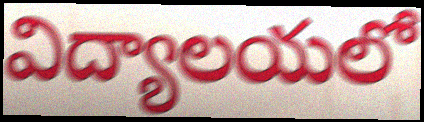
విద్యాలయలో